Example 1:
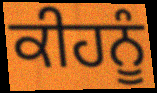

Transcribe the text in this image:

ਕੀਹਨੂੰ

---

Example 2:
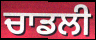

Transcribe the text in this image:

ਚਾਡਲੀ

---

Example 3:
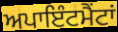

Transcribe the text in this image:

ਅਪਾਇੰਟਮੈਂਟਾਂ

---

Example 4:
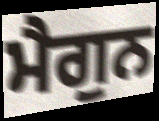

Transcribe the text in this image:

ਮੈਗੁਨ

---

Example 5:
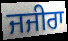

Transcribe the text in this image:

ਜਜੀਰਾ